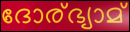
ദോര്ഭ്യാമ്